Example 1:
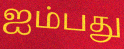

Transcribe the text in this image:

ஐம்பது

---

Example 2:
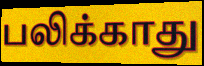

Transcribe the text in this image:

பலிக்காது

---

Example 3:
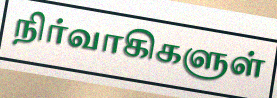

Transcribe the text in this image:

நிர்வாகிகளுள்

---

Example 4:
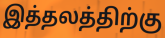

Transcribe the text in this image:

இத்தலத்திற்கு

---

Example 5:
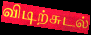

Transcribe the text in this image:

விடிற்சுடல்